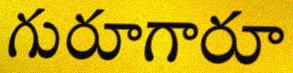
గురూగారూ